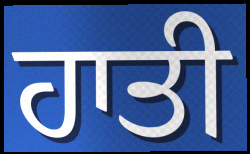
ਹਾਤੀ